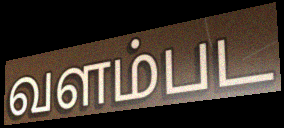
வளம்பட